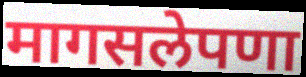
मागसलेपणा